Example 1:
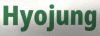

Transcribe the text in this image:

Hyojung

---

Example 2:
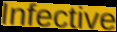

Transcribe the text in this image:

Infective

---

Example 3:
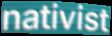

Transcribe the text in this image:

nativist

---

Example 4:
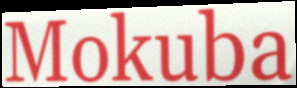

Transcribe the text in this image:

Mokuba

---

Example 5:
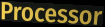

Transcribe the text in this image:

Processor